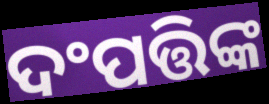
ଦଂପତ୍ତିଙ୍କ